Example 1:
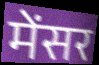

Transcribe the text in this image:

मेंसर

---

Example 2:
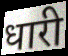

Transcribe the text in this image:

धारी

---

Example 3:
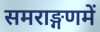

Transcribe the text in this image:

समराङ्गणमें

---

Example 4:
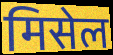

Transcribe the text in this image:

मिसेल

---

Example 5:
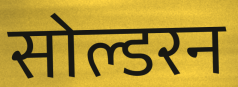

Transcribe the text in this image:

सोल्डरन